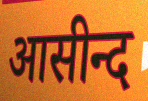
आसीन्द